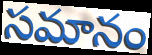
సమానం